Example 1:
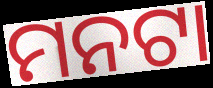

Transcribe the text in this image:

ମନଟା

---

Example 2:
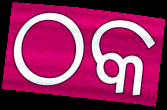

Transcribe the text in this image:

ଠକ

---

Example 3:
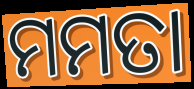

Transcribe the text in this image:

ମମତା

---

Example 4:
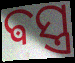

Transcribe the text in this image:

ଵସ୍ତ୍ର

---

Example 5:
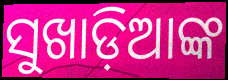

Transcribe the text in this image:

ସୁଖାଡ଼ିଆଙ୍କ